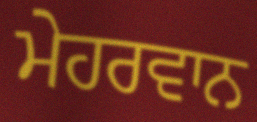
ਮੇਹਰਵਾਨ